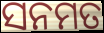
ସନମତ